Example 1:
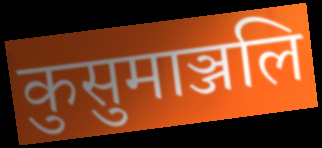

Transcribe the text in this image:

कुसुमाञ्जलि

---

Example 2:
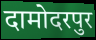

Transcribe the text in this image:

दामोदरपुर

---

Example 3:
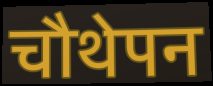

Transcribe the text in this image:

चौथेपन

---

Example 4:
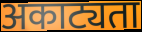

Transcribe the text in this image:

अकाट्यता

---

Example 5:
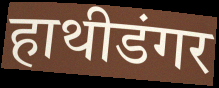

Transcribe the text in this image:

हाथीडंगर